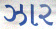
ઝાર